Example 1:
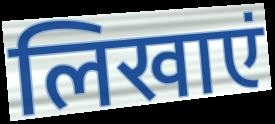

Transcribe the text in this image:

लिखाएं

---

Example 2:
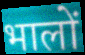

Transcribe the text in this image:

भालों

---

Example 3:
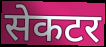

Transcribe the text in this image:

सेकटर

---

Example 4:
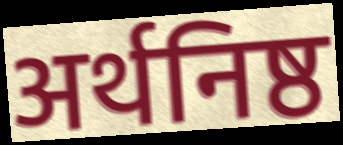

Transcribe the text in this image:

अर्थनिष्ठ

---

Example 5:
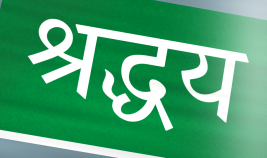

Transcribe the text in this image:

श्रद्धय